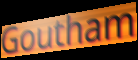
Goutham